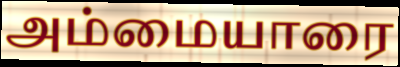
அம்மையாரை